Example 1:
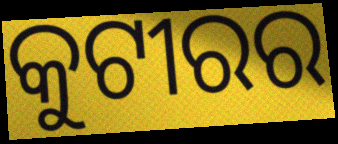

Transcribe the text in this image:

କୁଟୀରର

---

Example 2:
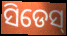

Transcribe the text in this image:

ସିଡେସ୍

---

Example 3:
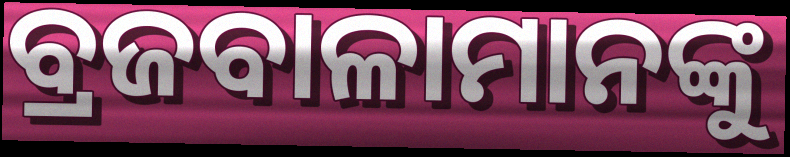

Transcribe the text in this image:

ବ୍ରଜବାଳାମାନଙ୍କୁ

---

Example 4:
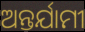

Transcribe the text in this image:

ଅନ୍ତର୍ଯାମୀ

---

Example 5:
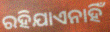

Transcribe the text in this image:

ରହିଯାଏନାହିଁ